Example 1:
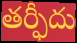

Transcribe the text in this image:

తర్ఫీదు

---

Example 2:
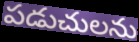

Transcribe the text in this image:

పడుచులను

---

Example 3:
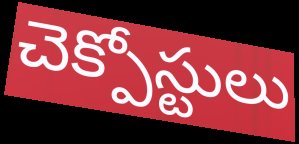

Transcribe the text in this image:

చెక్పోస్టులు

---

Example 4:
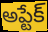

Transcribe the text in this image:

అప్టేక్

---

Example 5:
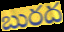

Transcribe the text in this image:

బురద